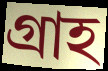
গ্রাহ